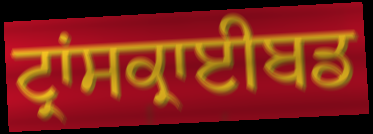
ਟ੍ਰਾਂਸਕ੍ਰਾਈਬਡ